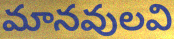
మానవులవి